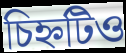
চিহ্নটিও